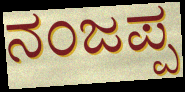
ನಂಜಪ್ಪ